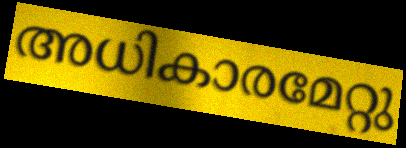
അധികാരമേറ്റു